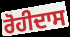
ਰੋਹੀਦਾਸ